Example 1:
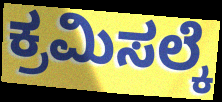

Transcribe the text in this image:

ಕ್ರಮಿಸಲ್ಕೆ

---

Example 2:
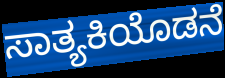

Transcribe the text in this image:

ಸಾತ್ಯಕಿಯೊಡನೆ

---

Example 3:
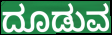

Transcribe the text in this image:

ದೂಡುವ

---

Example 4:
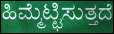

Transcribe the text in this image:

ಹಿಮ್ಮೆಟ್ಟಿಸುತ್ತದೆ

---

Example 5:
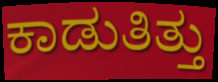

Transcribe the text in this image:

ಕಾಡುತಿತ್ತು